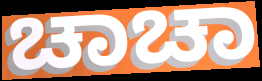
ಚಾಚಾ